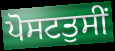
ਪੋਸਟਤੁਸੀਂ